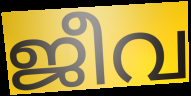
ജീവ